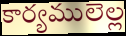
కార్యములెల్ల